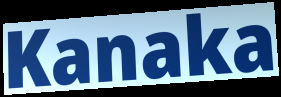
Kanaka